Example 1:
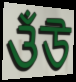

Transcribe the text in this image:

ওঁউ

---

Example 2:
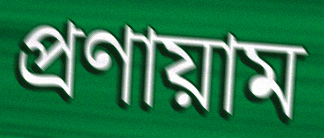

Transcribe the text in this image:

প্রণায়াম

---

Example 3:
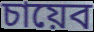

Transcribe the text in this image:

চায়েব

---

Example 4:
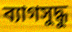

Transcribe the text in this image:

ব্যাগসুদ্ধু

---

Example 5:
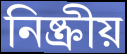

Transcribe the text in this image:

নিষ্ক্রীয়